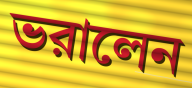
ভরালেন